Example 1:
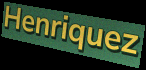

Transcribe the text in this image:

Henriquez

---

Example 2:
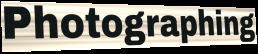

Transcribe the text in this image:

Photographing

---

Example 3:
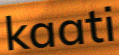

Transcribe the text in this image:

kaati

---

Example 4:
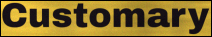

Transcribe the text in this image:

Customary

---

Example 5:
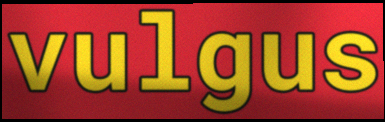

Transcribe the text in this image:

vulgus